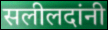
सलीलदांनी